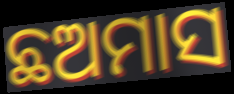
ଛଅମାସ